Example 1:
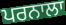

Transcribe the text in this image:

ਪਰਨਾਲਾ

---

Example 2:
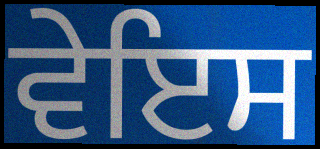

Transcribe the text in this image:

ਵੇਇਸ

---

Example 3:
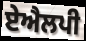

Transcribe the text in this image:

ਏਐਲਪੀ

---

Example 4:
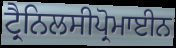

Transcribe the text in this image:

ਟ੍ਰੈਨਿਲਸੀਪ੍ਰੋਮਾਈਨ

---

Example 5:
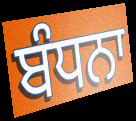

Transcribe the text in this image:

ਬੰਧਨਾ